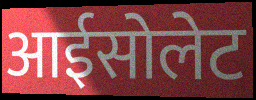
आईसोलेट